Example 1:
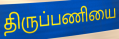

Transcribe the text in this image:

திருப்பணியை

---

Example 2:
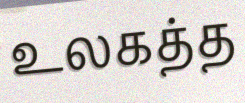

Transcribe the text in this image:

உலகத்த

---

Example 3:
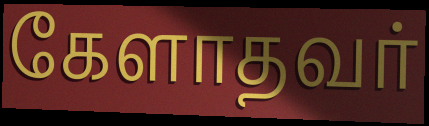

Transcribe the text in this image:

கேளாதவர்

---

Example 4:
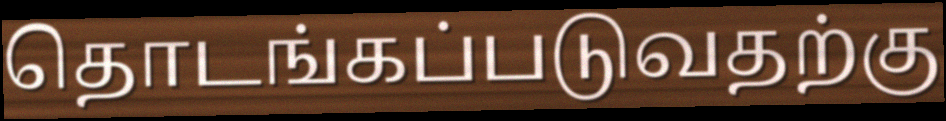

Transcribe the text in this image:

தொடங்கப்படுவதற்கு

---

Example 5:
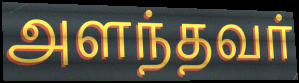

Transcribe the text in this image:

அளந்தவர்